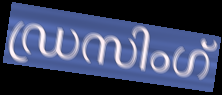
ഡ്രസിംഗ്